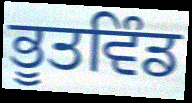
ਭੂਤਵਿੰਡ